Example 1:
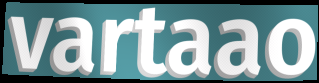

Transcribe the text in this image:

vartaao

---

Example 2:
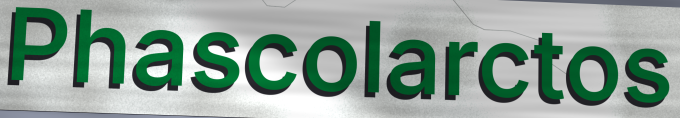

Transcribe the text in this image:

Phascolarctos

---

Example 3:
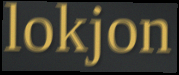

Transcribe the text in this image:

lokjon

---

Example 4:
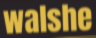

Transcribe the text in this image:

walshe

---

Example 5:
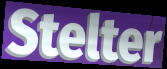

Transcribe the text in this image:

Stelter